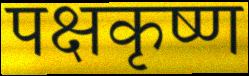
पक्षकृष्ण